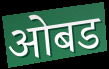
ओबड